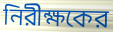
নিরীক্ষকের